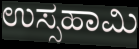
ಉಸ್ಸಹಾಮಿ